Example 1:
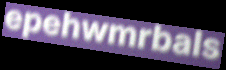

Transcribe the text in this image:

epehwmrbals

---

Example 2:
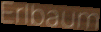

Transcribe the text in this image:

Erlbaum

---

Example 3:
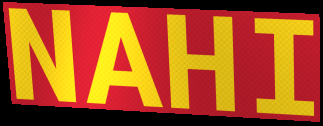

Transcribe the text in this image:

NAHI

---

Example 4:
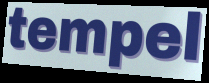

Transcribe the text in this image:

tempel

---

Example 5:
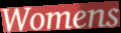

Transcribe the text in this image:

Womens